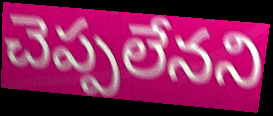
చెప్పలేనని